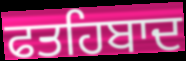
ਫਤਹਿਬਾਦ